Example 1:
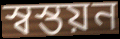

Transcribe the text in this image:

স্বস্তয়ন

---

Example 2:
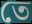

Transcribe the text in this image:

তে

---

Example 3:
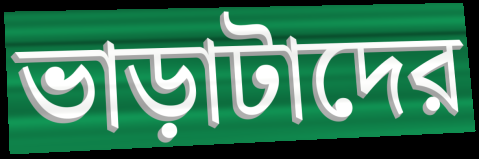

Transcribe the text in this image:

ভাড়াটাদের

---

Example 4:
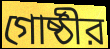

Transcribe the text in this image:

গোষ্ঠীর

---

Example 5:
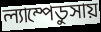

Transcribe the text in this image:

ল্যাম্পেডুসায়